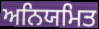
ਅਨਿਯਮਿਤ